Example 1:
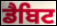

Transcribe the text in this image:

ਡੈਬਿਟ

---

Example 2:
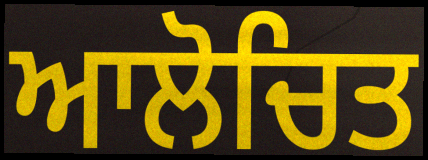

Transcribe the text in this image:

ਆਲੋਚਿਤ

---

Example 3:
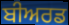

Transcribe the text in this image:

ਬੀਅਰਡ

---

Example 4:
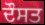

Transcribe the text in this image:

ਦੌਸਤ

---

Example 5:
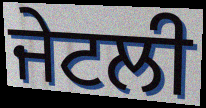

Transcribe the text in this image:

ਜੇਟਲੀ